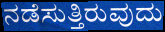
ನಡೆಸುತ್ತಿರುವುದು